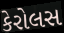
કેરોલસ